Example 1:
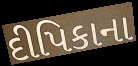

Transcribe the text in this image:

દીપિકાના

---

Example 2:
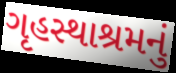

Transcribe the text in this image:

ગૃહસ્થાશ્રમનું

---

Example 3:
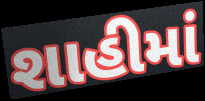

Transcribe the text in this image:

શાહીમાં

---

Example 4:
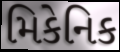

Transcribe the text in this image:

મિકેનિક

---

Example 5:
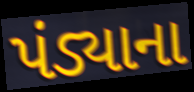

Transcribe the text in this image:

પંડ્યાના